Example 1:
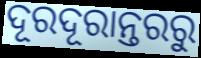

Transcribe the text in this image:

ଦୂରଦୂରାନ୍ତରରୁ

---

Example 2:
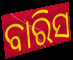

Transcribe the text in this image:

ବାରିସ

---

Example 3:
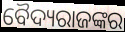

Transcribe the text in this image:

ବୈଦ୍ୟରାଜଙ୍କର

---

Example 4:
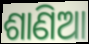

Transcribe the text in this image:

ଶାଣିଆ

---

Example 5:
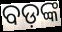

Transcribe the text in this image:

ବଡ଼ଙ୍କ